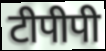
टीपीपी